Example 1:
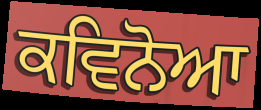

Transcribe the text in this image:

ਕਵਿਨੋਆ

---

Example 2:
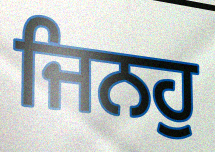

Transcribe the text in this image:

ਜਿਨਹੁ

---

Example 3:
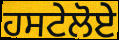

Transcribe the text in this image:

ਹਸਟੇਲੋਏ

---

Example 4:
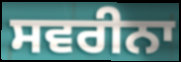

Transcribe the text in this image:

ਸਵਰੀਨਾ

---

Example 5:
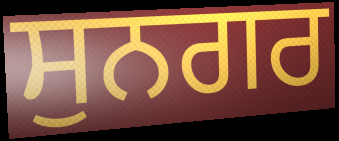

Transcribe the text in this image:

ਸੁਨਗਰ